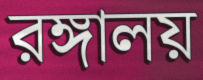
রঙ্গালয়